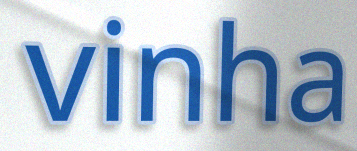
vinha